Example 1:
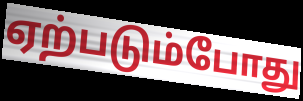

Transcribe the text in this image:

ஏற்படும்போது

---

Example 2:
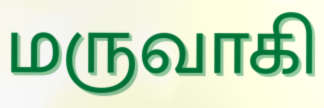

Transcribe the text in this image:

மருவாகி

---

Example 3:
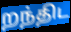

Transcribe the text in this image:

றந்திட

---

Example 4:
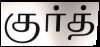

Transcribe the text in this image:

குர்த்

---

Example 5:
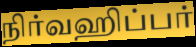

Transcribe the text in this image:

நிர்வஹிப்பர்